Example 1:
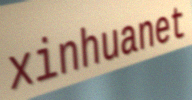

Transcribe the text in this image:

xinhuanet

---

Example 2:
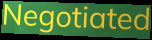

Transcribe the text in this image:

Negotiated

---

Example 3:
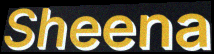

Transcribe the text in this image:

Sheena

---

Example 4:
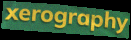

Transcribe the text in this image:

xerography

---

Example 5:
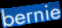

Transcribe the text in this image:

bernie